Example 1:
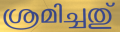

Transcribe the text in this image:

ശ്രമിച്ചതു്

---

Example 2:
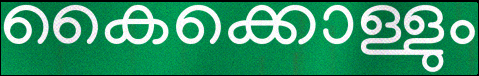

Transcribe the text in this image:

കൈക്കൊള്ളും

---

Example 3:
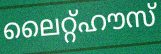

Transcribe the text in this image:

ലൈറ്റ്ഹൗസ്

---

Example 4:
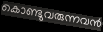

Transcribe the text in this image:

കൊണ്ടുവരുന്നവൻ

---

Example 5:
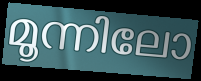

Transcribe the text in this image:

മൂന്നിലോ